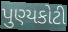
પુણ્યકોટી